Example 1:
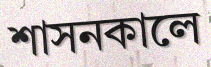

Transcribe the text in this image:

শাসনকালে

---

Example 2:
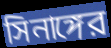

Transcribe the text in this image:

সিনাঙ্গের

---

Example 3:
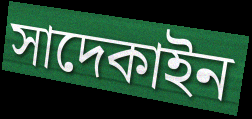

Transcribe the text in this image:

সাদেকাইন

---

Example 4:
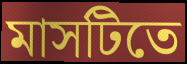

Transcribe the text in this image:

মাসটিতে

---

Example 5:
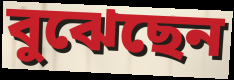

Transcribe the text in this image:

বুঝেছেন